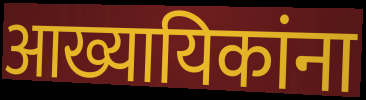
आख्यायिकांना